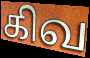
கிவ